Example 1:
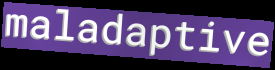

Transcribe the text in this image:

maladaptive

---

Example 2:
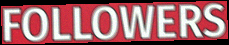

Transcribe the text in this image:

FOLLOWERS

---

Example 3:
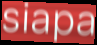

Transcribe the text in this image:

siapa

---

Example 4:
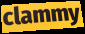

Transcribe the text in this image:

clammy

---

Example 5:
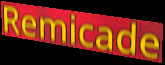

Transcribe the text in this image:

Remicade